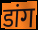
डांग